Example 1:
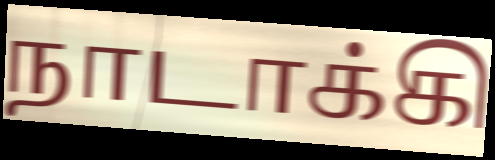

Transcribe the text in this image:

நாடாக்கி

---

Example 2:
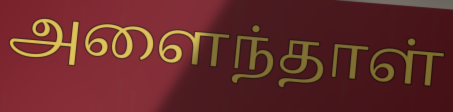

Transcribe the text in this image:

அளைந்தாள்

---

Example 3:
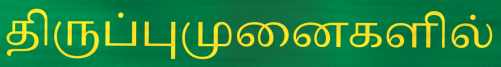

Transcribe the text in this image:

திருப்புமுனைகளில்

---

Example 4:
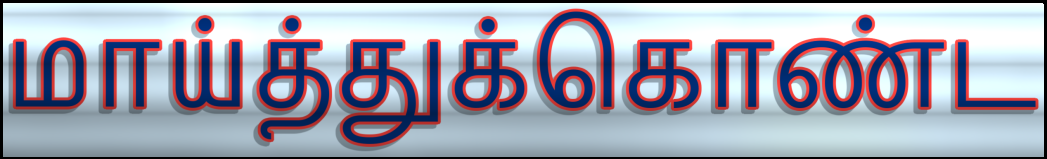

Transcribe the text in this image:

மாய்த்துக்கொண்ட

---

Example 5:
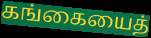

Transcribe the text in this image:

கங்கையைத்